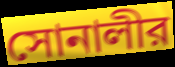
সোনালীর